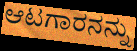
ಆಟಗಾರನನ್ನು